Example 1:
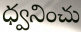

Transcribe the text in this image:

ధ్వనించు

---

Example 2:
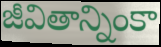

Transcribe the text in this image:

జీవితాన్నింకా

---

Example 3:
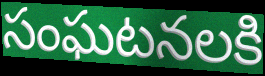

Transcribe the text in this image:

సంఘటనలకి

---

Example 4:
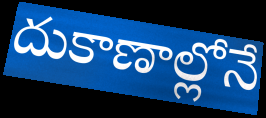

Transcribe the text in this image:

దుకాణాల్లోనే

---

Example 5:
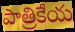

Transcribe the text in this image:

పాత్రికేయ